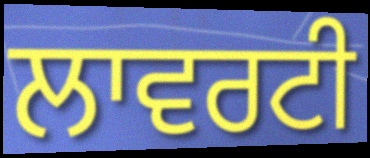
ਲਾਵਰਟੀ